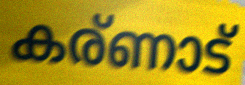
കര്ണാട്